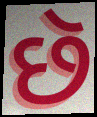
છૅ